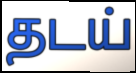
தடய்